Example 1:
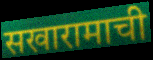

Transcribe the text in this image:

सखारामाची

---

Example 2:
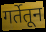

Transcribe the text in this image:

गर्तेतून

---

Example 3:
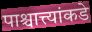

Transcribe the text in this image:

पाश्चात्त्यांकडे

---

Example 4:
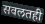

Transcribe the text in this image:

सवलतही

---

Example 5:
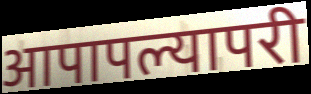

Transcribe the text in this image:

आपापल्यापरी